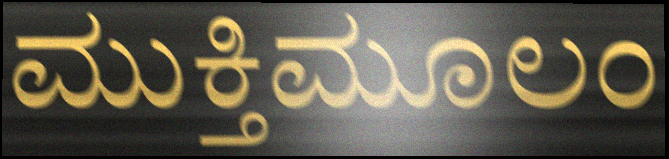
ಮುಕ್ತಿಮೂಲಂ